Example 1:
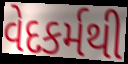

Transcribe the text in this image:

વેદકર્મથી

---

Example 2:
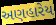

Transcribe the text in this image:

અણહારેય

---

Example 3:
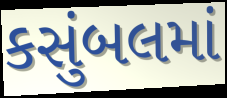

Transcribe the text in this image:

કસુંબલમાં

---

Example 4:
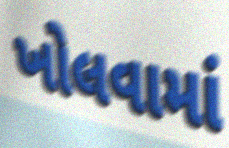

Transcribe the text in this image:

ખોલવામાં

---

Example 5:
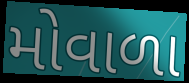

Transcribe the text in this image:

મોવાળા